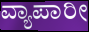
ವ್ಯಾಪಾರೀ